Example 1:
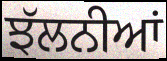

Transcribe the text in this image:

ਝੱਲਨੀਆਂ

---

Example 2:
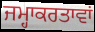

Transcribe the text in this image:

ਜਮ੍ਹਾਕਰਤਾਵਾਂ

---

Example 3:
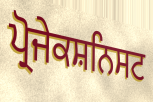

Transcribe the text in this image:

ਪ੍ਰੋਜੇਕਸ਼ਨਿਸਟ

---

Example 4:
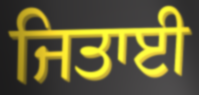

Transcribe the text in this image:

ਜਿਤਾਈ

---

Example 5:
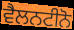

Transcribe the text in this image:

ਵੈਲਨਟੀਨੋ